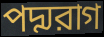
পদ্মরাগ